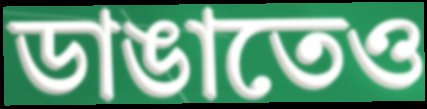
ডাঙাতেও